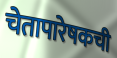
चेतापारेषकची